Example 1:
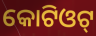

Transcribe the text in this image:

କୋଟିଓଟ୍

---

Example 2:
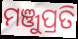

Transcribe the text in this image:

ମଞ୍ଜୁପ୍ରତି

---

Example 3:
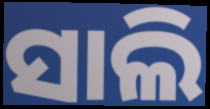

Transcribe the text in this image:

ସାଲି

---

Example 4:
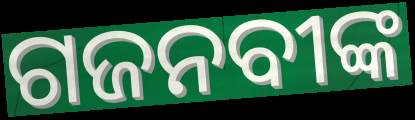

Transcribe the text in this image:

ଗଜନବୀଙ୍କ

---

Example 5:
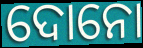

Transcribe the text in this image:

ଦୋନୋ